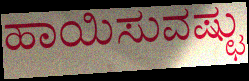
ಹಾಯಿಸುವಷ್ಟು